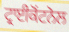
ਟ੍ਰਾਈਕੋਂਟਨੋਲ